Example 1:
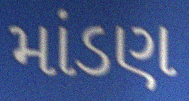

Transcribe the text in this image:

માંડણ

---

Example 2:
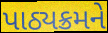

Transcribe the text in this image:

પાઠ્યક્રમને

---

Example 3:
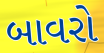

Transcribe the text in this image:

બાવરો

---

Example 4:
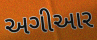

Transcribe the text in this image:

અગીઆર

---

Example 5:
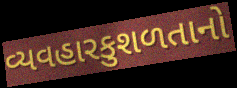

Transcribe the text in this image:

વ્યવહારકુશળતાનો